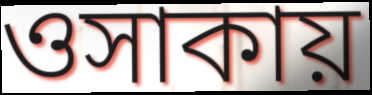
ওসাকায়